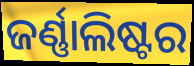
ଜର୍ଣ୍ଣାଲିଷ୍ଟର